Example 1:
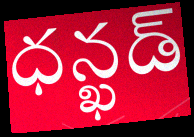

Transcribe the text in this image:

ధన్ఖడ్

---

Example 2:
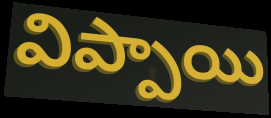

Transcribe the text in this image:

విప్పాయి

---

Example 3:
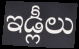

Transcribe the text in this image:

ఇడ్లీలు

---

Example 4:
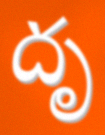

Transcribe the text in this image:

దృ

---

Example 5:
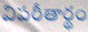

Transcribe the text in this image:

విపరీతార్థం